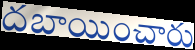
దబాయించారు